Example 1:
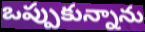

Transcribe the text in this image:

ఒప్పుకున్నాను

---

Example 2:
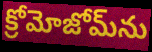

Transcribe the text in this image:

క్రోమోజోమ్‌ను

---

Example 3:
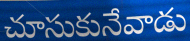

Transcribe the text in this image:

చూసుకునేవాడు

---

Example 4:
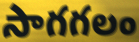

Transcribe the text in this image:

సాగగలం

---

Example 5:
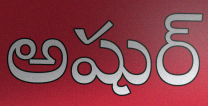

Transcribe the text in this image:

అషుర్